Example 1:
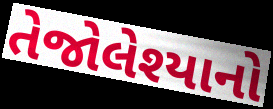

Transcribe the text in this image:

તેજોલેશ્યાનો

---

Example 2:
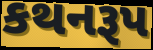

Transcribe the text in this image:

કથનરૂપ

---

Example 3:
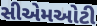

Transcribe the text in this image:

સીએમઓટી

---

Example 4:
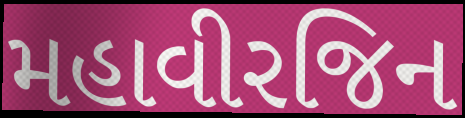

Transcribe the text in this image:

મહાવીરજિન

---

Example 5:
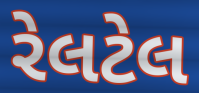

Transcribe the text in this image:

રેલટેલ